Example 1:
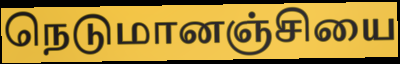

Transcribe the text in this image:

நெடுமானஞ்சியை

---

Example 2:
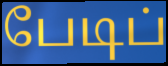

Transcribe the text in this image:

பேடிப்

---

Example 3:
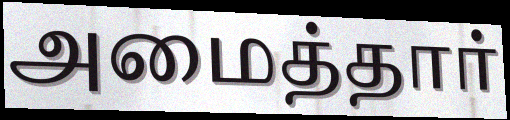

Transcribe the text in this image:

அமைத்தார்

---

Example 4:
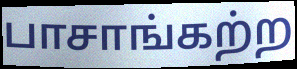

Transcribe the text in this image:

பாசாங்கற்ற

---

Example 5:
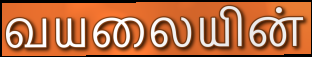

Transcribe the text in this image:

வயலையின்